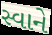
સ્વાને